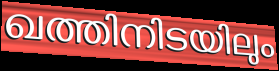
ഖത്തിനിടയിലും